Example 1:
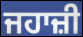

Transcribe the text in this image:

ਜਹਾਜ਼ੀ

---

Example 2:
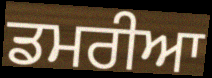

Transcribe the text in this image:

ਡਮਰੀਆ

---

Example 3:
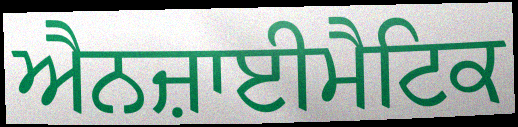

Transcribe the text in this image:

ਐਨਜ਼ਾਈਮੈਟਿਕ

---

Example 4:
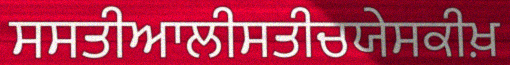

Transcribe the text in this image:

ਸਸਤੀਆਲੀਸਤੀਚਯੇਸਕੀਖ਼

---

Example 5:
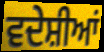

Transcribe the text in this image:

ਵਦੇਸ਼ੀਆਂ